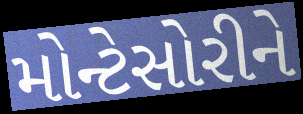
મોન્ટેસોરીને